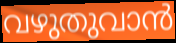
വഴുതുവാൻ